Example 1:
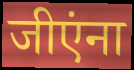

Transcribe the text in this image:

जीएंना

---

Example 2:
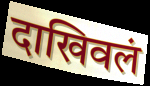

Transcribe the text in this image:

दाखिवलं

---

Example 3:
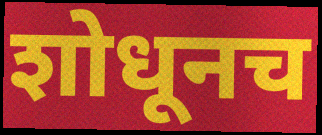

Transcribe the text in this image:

शोधूनच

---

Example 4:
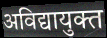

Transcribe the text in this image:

अविद्यायुक्त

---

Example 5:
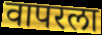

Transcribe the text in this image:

वापरला